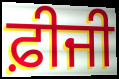
ਫ਼ੀਜੀ